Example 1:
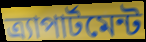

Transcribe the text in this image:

ত্র্যাপার্টমেন্ট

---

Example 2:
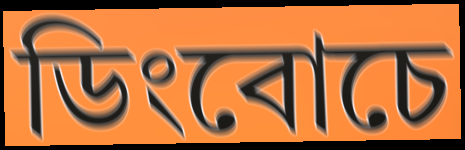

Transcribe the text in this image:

ডিংবোচে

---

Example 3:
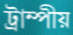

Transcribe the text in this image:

ট্রাম্পীয়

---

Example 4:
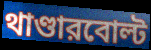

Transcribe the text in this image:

থাণ্ডারবোল্ট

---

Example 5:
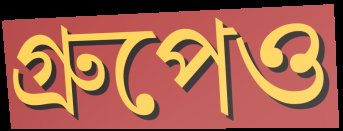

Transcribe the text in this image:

গ্রুপেও